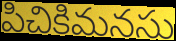
పిచికిమనసు